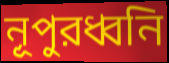
নূপুরধ্বনি